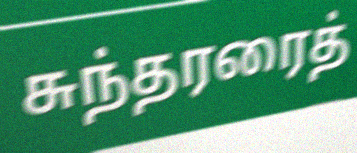
சுந்தரரைத்